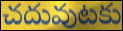
చదువుటకు